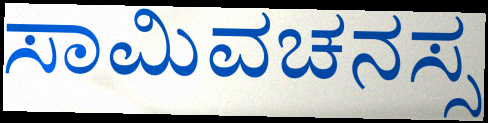
ಸಾಮಿವಚನಸ್ಸ